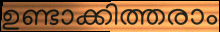
ഉണ്ടാക്കിത്തരാം